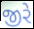
જીરે